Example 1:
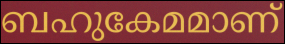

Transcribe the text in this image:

ബഹുകേമമാണ്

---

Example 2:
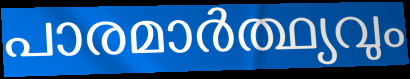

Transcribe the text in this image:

പാരമാർത്ഥ്യവും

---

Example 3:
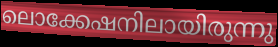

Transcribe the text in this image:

ലൊക്കേഷനിലായിരുന്നു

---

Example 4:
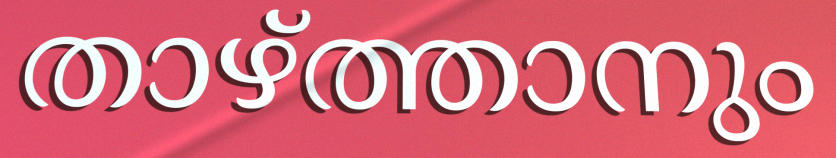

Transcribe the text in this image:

താഴ്ത്താനും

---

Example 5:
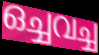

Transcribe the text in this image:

ഒച്ചവച്ച